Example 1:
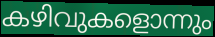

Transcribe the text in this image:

കഴിവുകളൊന്നും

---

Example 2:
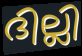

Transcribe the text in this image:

ദില്ലി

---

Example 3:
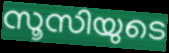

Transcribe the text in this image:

സൂസിയുടെ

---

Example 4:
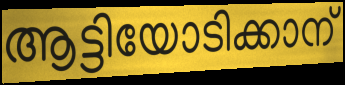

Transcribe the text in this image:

ആട്ടിയോടിക്കാന്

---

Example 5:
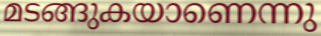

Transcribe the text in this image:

മടങ്ങുകയാണെന്നു